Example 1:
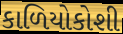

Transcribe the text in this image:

કાળિયોકોશી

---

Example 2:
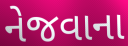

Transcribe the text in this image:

નેજવાના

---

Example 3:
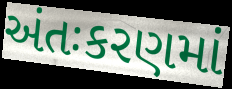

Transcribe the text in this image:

અંતઃકરણમાં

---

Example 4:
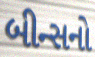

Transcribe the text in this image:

બીન્સનો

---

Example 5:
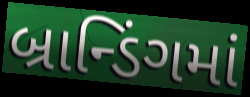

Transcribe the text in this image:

બ્રાન્ડિંગમાં